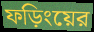
ফড়িংয়ের